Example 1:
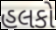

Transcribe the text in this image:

હલકો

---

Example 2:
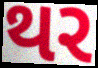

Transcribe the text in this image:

થર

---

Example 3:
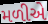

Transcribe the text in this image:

મળીએ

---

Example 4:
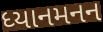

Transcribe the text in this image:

ધ્યાનમનન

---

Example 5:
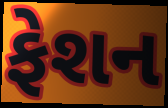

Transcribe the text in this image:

ફેશન